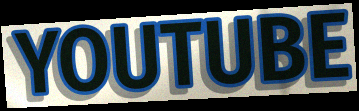
YOUTUBE